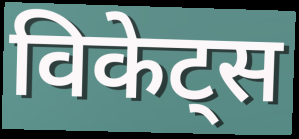
विकेट्स